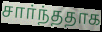
சார்ந்ததாக